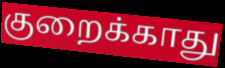
குறைக்காது